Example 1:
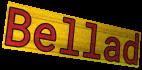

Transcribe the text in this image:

Bellad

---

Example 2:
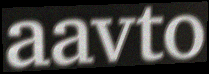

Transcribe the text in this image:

aavto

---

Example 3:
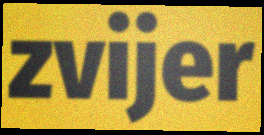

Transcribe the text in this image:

zvijer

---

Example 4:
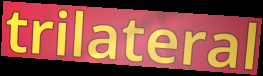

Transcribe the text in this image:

trilateral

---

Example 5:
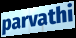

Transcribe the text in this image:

parvathi